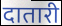
दातारी